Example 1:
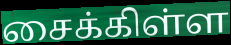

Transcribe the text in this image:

சைக்கிள்ள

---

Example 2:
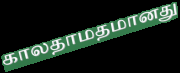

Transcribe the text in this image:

காலதாமதமானது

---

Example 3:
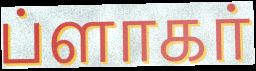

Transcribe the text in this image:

ப்ளாகர்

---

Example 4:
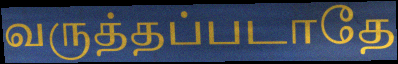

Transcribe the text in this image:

வருத்தப்படாதே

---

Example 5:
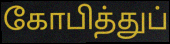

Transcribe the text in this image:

கோபித்துப்